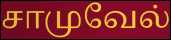
சாமுவேல்